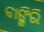
ବାଙ୍ଗିରି